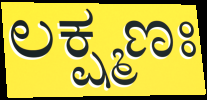
ಲಕ್ಷ್ಮಣಃ